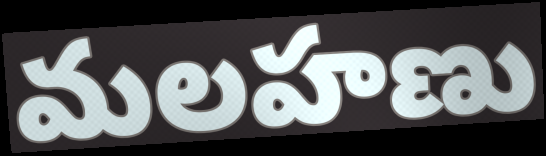
మలహణు